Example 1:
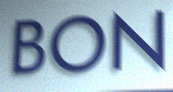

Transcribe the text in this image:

BON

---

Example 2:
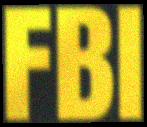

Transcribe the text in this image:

FBI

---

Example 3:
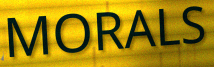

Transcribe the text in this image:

MORALS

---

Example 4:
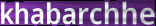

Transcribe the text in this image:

khabarchhe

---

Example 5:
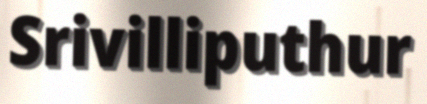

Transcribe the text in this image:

Srivilliputhur